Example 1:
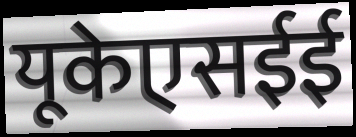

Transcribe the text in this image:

यूकेएसईई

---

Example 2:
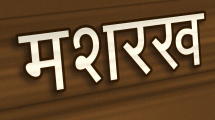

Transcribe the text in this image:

मशरख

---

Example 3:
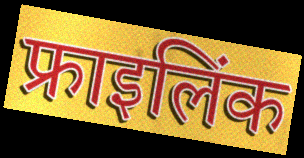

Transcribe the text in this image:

फ्राइलिंक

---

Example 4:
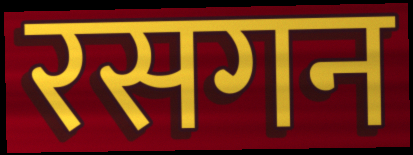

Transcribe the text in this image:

रसगन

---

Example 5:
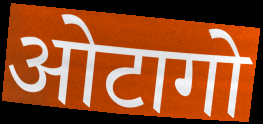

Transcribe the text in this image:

ओटागो